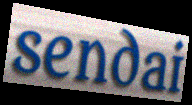
sendai